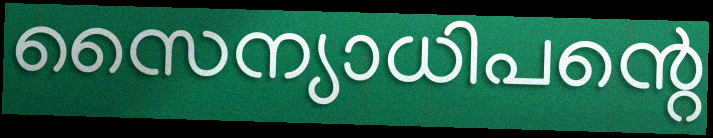
സൈന്യാധിപന്റെ